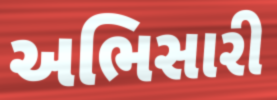
અભિસારી